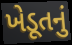
ખેડૂતનું